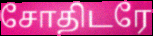
சோதிடரே